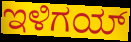
ಇಳಿಗಯ್